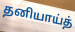
தனியாய்த்